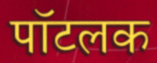
पॉटलक